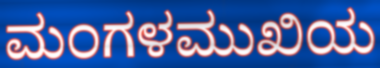
ಮಂಗಳಮುಖಿಯ